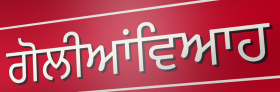
ਗੋਲੀਆਂਵਿਆਹ